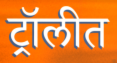
ट्रॉलीत